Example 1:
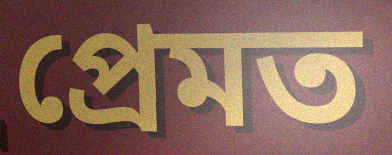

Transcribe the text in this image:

প্ৰেমত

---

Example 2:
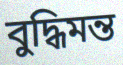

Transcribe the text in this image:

বুদ্ধিমন্ত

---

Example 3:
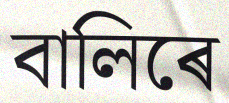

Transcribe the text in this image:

বালিৰে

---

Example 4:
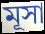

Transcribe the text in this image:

মূসা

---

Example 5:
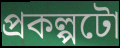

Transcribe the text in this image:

প্ৰকল্পটো